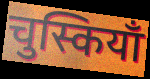
चुस्कियाँ